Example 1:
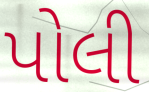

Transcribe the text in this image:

પોલી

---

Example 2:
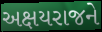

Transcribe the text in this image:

અક્ષયરાજને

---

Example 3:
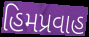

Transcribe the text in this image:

હિમપ્રવાહ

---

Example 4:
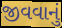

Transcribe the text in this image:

જીવવાનું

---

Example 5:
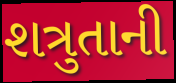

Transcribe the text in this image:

શત્રુતાની